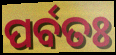
ପର୍ବତଃ